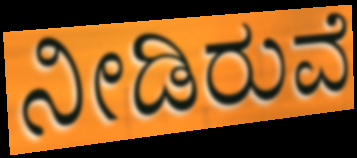
ನೀಡಿರುವೆ